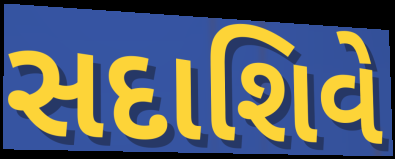
સદાશિવે